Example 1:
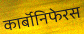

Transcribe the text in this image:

कार्बॉनिफेरस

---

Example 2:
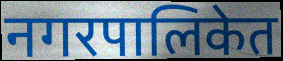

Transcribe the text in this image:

नगरपालिकेत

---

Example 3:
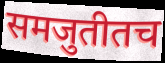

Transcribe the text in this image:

समजुतीतच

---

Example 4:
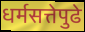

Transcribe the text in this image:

धर्मसत्तेपुढे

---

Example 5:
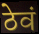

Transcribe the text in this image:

ठेवं